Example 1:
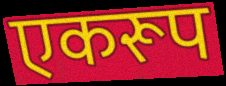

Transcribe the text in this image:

एकरूप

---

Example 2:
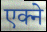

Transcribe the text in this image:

एक्ने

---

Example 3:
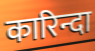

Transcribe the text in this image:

कारिन्दा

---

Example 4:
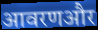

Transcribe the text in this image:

आवरणऔर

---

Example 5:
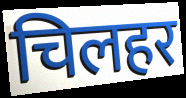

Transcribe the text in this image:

चिलहर